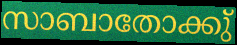
സാബാതോക്കു്